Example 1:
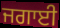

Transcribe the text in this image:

ਜਗਾਈ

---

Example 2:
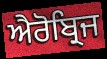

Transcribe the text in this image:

ਐਰੋਬ੍ਰਿਜ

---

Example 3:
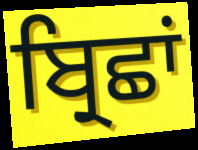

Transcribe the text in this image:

ਬ੍ਰਿਛਾਂ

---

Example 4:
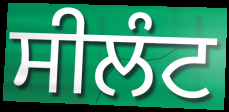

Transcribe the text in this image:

ਸੀਲੰਟ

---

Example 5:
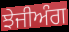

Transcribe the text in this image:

ਝੇਜੀਅੰਗ